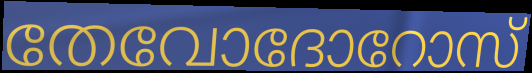
തേവോദോറോസ്